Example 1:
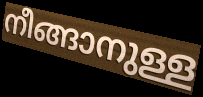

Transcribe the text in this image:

നീങ്ങാനുള്ള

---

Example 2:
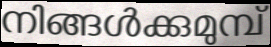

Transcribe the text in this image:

നിങ്ങൾക്കുമുമ്പ്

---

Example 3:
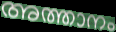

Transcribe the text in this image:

അത്താനം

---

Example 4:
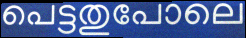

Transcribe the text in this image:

പെട്ടതുപോലെ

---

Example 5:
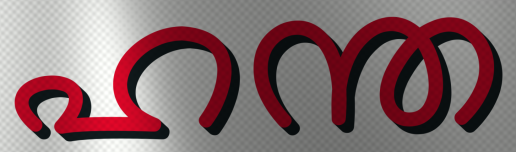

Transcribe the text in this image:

ഹന്ത